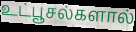
உட்பூசல்களால்